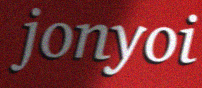
jonyoi